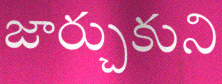
జార్చుకుని